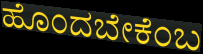
ಹೊಂದಬೇಕೆಂಬ